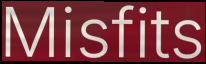
Misfits